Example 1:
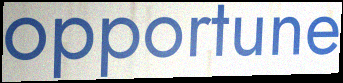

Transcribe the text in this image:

opportune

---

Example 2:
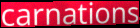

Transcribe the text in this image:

carnations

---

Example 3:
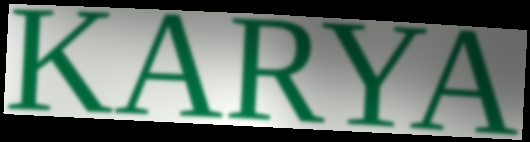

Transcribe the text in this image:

KARYA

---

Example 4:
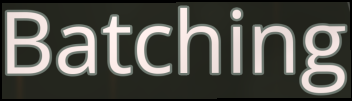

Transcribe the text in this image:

Batching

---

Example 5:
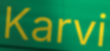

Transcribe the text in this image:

Karvi